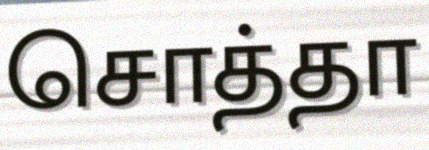
சொத்தா